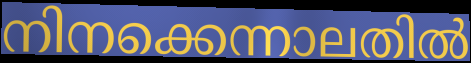
നിനക്കെന്നാലതിൽ